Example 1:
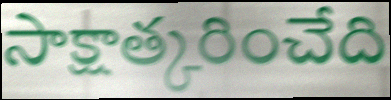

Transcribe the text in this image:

సాక్షాత్కరించేది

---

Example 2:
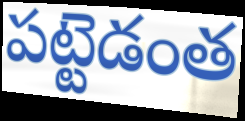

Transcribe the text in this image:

పట్టెడంత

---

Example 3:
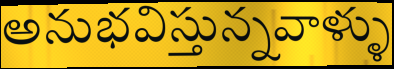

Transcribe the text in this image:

అనుభవిస్తున్నవాళ్ళు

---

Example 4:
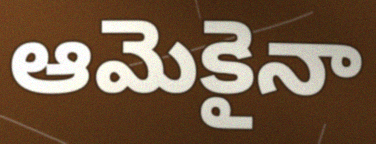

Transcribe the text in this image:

ఆమెకైనా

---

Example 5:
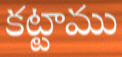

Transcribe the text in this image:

కట్టాము